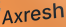
Axresh